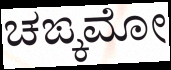
ಚಙ್ಕಮೋ